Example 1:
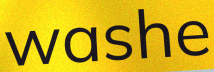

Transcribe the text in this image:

washe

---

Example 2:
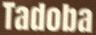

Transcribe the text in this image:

Tadoba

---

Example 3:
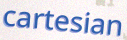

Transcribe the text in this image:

cartesian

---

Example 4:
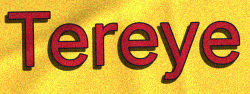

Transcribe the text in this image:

Tereye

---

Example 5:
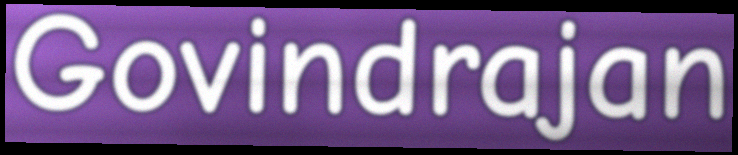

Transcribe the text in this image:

Govindrajan